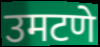
उमटणे